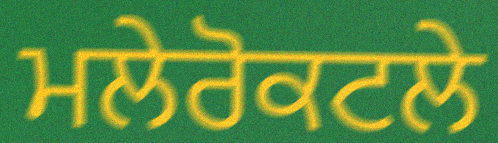
ਮਲੇਰੋਕਟਲੇ